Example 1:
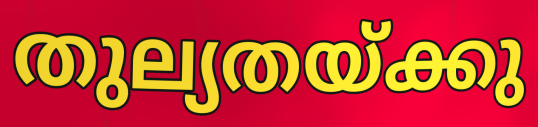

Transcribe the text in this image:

തുല്യതയ്ക്കു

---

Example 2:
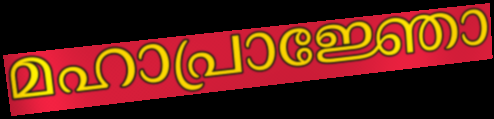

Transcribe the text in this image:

മഹാപ്രാജ്ഞോ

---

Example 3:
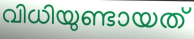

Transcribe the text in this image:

വിധിയുണ്ടായത്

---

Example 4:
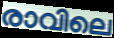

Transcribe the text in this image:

രാവിലെ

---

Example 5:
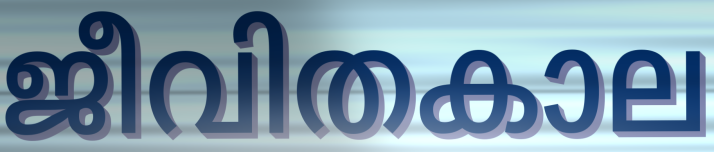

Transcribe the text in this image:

ജീവിതകാല